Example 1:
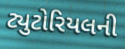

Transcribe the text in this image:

ટ્યુટોરિયલની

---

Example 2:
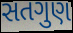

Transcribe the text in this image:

સતગુણ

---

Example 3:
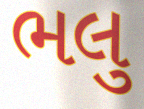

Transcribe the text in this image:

ભલુ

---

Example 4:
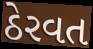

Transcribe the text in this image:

ઠેરવત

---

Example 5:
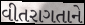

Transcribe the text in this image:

વીતરાગતાને